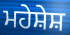
ਮਹੇਸ਼ੇਸ਼